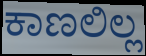
ಕಾಣಲಿಲ್ಲ